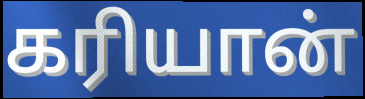
கரியான்